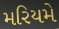
મરિયમે